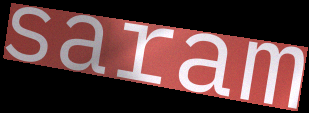
saram